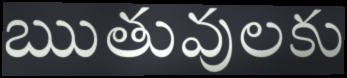
ఋతువులకు